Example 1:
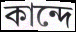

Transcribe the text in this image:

কান্দে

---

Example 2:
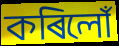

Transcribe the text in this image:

কৰিলোঁ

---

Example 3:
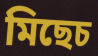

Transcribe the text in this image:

মিছেচ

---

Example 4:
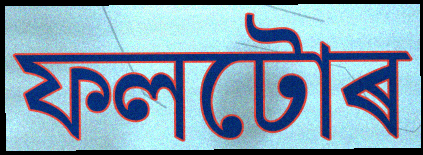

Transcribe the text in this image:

ফলটোৰ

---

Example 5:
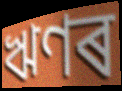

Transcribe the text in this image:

ঋণৰ